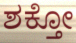
ಶಕ್ತೋ